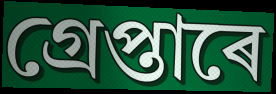
গ্ৰেপ্তাৰে